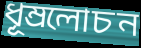
ধূম্রলোচন